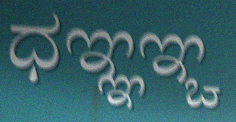
ಧಞ್ಞಞ್ಚ